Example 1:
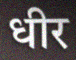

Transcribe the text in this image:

धीर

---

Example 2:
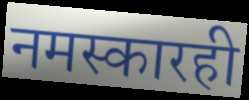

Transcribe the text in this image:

नमस्कारही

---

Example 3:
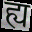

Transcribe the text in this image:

ह्य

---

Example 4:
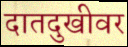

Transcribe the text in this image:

दातदुखीवर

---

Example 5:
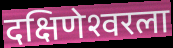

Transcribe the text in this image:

दक्षिणेश्वरला